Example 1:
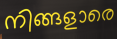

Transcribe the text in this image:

നിങ്ങളാരെ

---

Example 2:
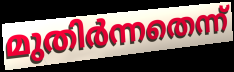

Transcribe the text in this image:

മുതിർന്നതെന്ന്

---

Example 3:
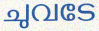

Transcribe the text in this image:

ചുവടേ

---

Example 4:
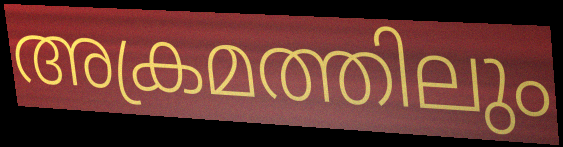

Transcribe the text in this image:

അക്രമത്തിലും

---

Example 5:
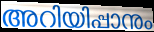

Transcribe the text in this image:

അറിയിപ്പാനും